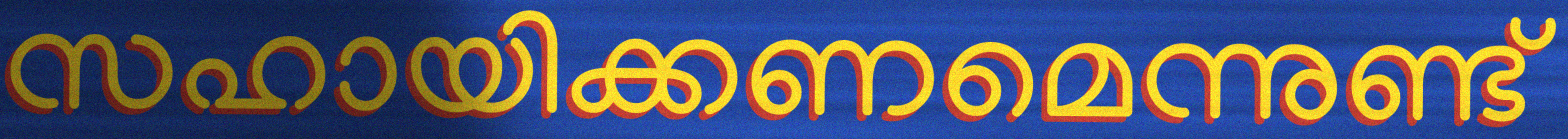
സഹായിക്കണമെന്നുണ്ട്